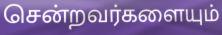
சென்றவர்களையும்